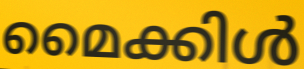
മൈക്കിൾ